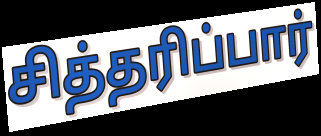
சித்தரிப்பார்